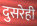
दुसरेही